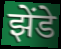
झेंडे